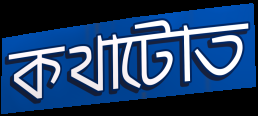
কথাটোত